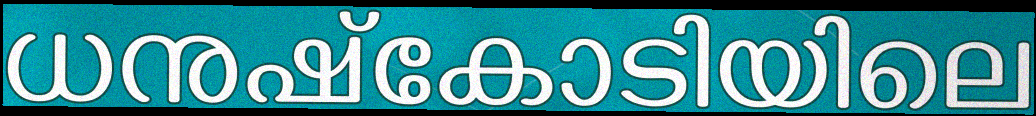
ധനുഷ്‌കോടിയിലെ